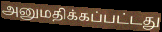
அனுமதிக்கப்பட்டது